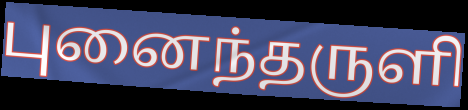
புனைந்தருளி